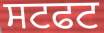
ਸਟਫਟ